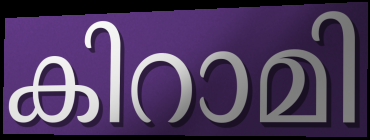
കിറാമി